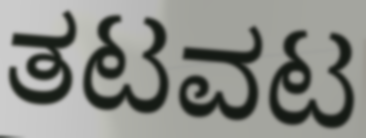
ತಟವಟ